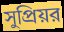
সুপ্রিয়র